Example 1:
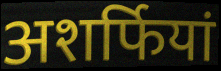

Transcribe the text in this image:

अशर्फियां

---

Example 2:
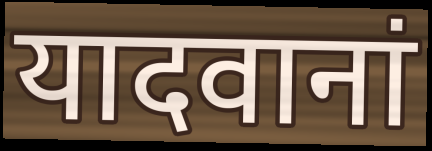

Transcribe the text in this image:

यादवानां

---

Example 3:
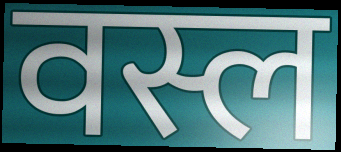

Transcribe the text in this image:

वस्ल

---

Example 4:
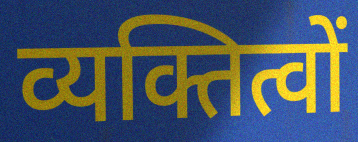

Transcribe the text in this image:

व्यक्तित्वों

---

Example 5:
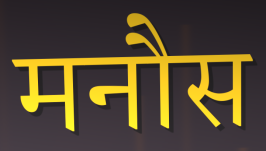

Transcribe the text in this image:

मनौस